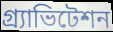
গ্র্যাভিটেশন